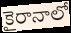
కైరానాలో